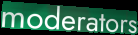
moderators